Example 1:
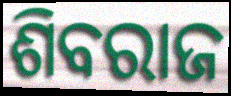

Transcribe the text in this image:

ଶିବରାଜ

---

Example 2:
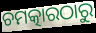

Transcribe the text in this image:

ଚମତ୍କାରଠାରୁ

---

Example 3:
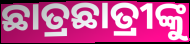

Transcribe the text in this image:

ଛାତ୍ରଛାତ୍ରୀଙ୍କୁ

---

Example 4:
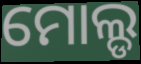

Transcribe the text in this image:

ମୋଲ୍ଡ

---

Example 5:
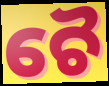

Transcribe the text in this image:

ଚୈ